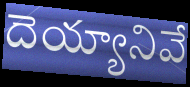
దెయ్యానివే